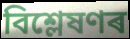
বিশ্লেষণৰ